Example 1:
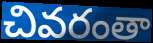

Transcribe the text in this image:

చివరంతా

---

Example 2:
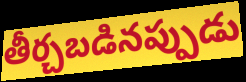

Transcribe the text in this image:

తీర్చబడినప్పుడు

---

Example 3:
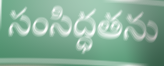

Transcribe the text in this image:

సంసిద్ధతను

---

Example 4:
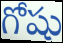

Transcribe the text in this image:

గోషు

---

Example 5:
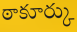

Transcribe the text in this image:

ఠాకూర్కు